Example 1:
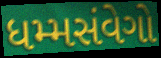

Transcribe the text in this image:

ધમ્મસંવેગો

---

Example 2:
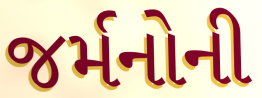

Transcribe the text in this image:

જર્મનોની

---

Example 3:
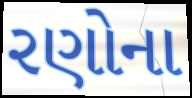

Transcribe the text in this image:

રણોના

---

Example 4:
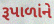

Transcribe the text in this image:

રૂપાળાંને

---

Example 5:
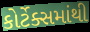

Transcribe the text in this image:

કોર્ટેક્સમાંથી